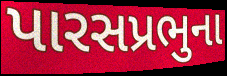
પારસપ્રભુના